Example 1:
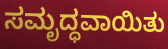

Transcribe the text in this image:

ಸಮೃದ್ಧವಾಯಿತು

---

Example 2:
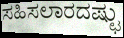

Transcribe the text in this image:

ಸಹಿಸಲಾರದಷ್ಟು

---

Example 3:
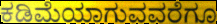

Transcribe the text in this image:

ಕಡಿಮೆಯಾಗುವವರೆಗೂ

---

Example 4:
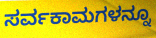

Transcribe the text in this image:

ಸರ್ವಕಾಮಗಳನ್ನೂ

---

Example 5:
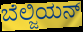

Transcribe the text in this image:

ಬೆಲ್ಜಿಯನ್